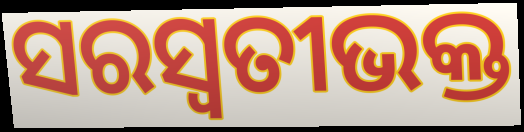
ସରସ୍ୱତୀଭକ୍ତ